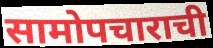
सामोपचाराची